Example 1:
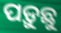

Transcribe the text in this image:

ପଡ଼ୁଛୁ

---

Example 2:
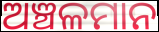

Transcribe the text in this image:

ଅଞ୍ଚଳମାନ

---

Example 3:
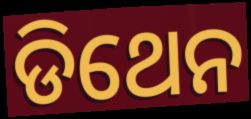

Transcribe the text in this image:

ଡିଥେନ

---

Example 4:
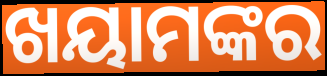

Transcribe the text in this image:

ଖୟାମଙ୍କର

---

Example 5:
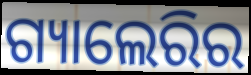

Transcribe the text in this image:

ଗ୍ୟାଲେରିର